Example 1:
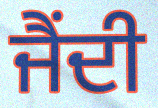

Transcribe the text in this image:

ਜੈਂਦੀ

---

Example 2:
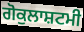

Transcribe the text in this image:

ਗੋਕੁਲਾਸ਼ਟਮੀ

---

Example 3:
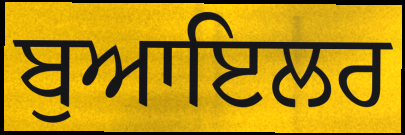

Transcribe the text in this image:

ਬੁਆਇਲਰ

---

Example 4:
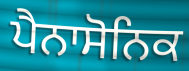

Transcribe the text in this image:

ਪੈਨਾਸੋਨਿਕ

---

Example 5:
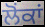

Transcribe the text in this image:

ਲੋਂਕਾਂ